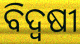
ବିଦ୍ୱଷୀ